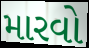
મારવો